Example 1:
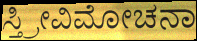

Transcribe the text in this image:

ಸ್ತ್ರೀವಿಮೋಚನಾ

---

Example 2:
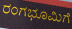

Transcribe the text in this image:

ರಂಗಭೂಮಿಗೆ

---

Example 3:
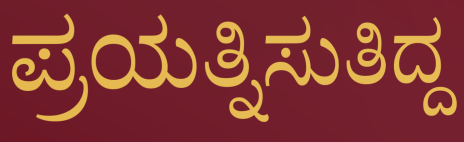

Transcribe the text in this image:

ಪ್ರಯತ್ನಿಸುತಿದ್ದ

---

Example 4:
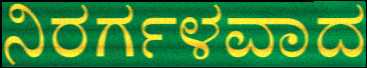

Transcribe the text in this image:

ನಿರರ್ಗಳವಾದ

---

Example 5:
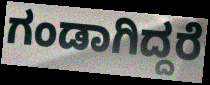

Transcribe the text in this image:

ಗಂಡಾಗಿದ್ದರೆ